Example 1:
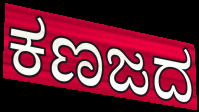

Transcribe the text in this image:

ಕಣಜದ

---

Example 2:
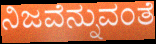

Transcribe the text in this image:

ನಿಜವೆನ್ನುವಂತೆ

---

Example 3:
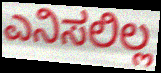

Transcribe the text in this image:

ಎನಿಸಲಿಲ್ಲ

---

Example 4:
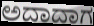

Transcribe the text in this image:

ಅದಾದಾಗ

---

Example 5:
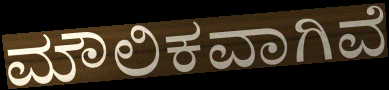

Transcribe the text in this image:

ಮೌಲಿಕವಾಗಿವೆ